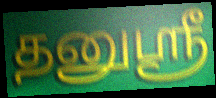
தனுஸ்ரீ